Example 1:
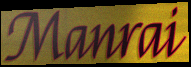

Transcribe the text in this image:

Manrai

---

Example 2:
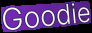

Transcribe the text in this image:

Goodie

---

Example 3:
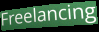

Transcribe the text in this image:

Freelancing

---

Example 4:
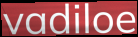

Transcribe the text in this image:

vadiloe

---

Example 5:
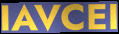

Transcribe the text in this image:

IAVCEI